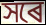
সৰে